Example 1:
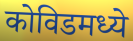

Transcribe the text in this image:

कोविडमध्ये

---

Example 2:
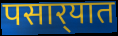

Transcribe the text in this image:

पसार्‍यात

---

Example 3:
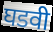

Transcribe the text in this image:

घडवी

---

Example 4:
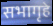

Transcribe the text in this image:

सभागृहे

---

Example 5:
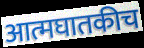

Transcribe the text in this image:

आत्मघातकीच